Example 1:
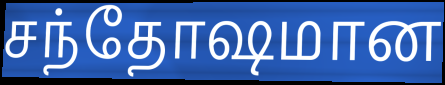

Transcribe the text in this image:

சந்தோஷமான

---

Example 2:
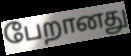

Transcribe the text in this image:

பேறானது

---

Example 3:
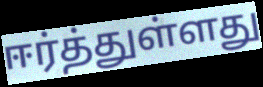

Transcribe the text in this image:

ஈர்த்துள்ளது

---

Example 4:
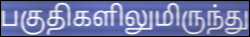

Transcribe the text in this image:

பகுதிகளிலுமிருந்து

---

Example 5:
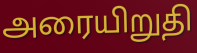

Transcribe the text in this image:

அரையிறுதி